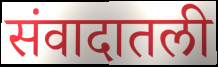
संवादातली